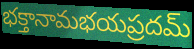
భక్తానామభయప్రదమ్